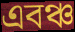
এবঞ্চ